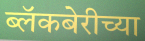
ब्लॅकबेरीच्या